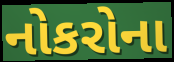
નોકરોના